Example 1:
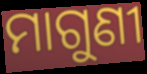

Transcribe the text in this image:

ମାଗୁଣୀ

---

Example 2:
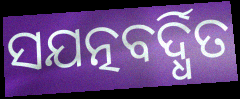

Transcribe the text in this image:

ସଯତ୍ନବର୍ଦ୍ଧିତ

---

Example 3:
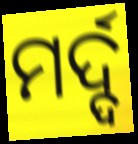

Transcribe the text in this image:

ମର୍ଦ୍ଦ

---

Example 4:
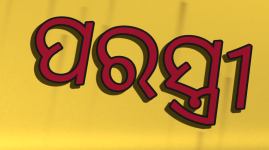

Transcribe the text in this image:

ପରସ୍ତ୍ରୀ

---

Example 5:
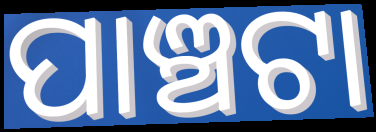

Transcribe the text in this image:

ପାଞ୍ଚଟା